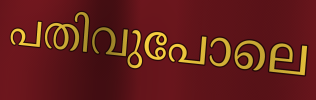
പതിവുപോലെ